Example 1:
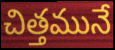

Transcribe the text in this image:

చిత్తమునే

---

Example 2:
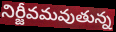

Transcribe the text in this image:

నిర్జీవమవుతున్న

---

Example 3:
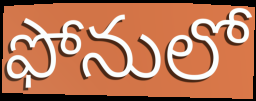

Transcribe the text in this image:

ఫోనులో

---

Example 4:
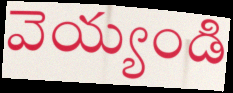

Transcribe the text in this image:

వెయ్యండి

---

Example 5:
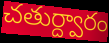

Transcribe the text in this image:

చతుర్ద్వారం